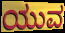
ಯುವ